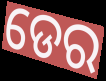
ଡେର